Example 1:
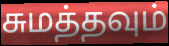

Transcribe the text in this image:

சுமத்தவும்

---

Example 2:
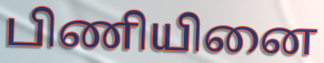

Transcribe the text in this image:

பிணியினை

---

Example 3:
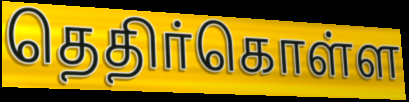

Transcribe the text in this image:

தெதிர்கொள்ள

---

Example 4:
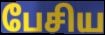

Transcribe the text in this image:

பேசிய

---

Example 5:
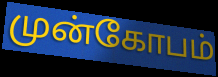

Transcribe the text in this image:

முன்கோபம்